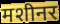
मशीनर